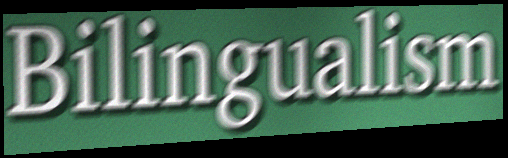
Bilingualism